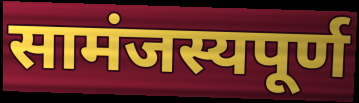
सामंजस्यपूर्ण